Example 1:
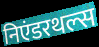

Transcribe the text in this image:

निएंडरथल्स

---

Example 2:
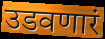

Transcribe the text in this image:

उडवणारं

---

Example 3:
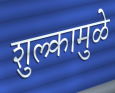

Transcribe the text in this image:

शुल्कामुळे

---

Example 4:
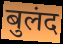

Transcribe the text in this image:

बुलंद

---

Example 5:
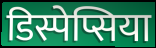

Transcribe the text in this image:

डिस्पेप्सिया